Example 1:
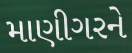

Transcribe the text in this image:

માણીગરને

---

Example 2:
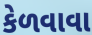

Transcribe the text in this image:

કેળવાવા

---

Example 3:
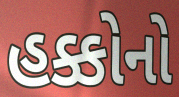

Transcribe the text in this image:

હક્કોનો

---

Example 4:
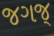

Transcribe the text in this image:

જગજ્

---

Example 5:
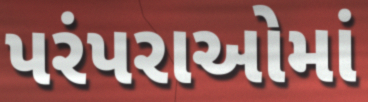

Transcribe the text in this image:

પરંપરાઓમાં